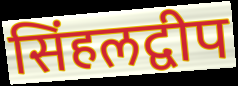
सिंहलद्वीप